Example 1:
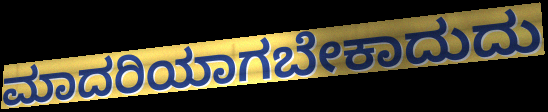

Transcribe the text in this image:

ಮಾದರಿಯಾಗಬೇಕಾದುದು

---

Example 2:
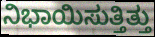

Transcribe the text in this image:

ನಿಭಾಯಿಸುತ್ತಿತ್ತು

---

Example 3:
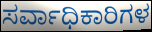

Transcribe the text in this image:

ಸರ್ವಾಧಿಕಾರಿಗಳ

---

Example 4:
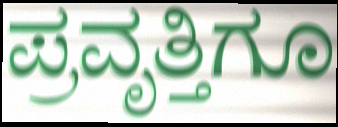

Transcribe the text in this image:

ಪ್ರವೃತ್ತಿಗೂ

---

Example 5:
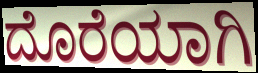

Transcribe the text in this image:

ದೊರೆಯಾಗಿ